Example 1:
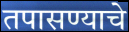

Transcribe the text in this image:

तपासण्याचे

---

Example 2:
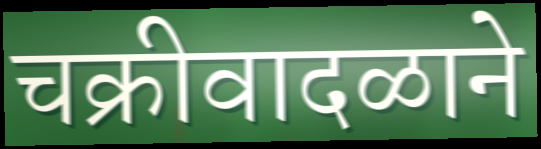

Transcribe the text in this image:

चक्रीवादळाने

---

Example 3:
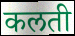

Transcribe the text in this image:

कलती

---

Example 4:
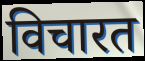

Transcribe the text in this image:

विचारत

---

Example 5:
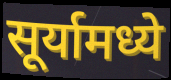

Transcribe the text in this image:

सूर्यामध्ये